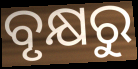
ବୃକ୍ଷରୁ